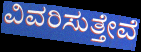
ವಿವರಿಸುತ್ತೇವೆ